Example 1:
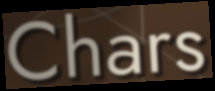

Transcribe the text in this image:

Chars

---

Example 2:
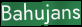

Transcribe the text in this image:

Bahujans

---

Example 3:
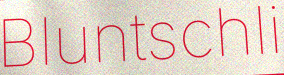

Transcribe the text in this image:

Bluntschli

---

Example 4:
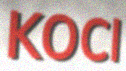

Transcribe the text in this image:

KOCl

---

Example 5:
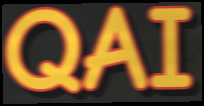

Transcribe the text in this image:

QAI